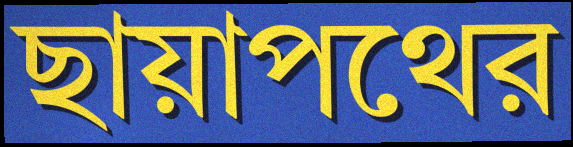
ছায়াপথের